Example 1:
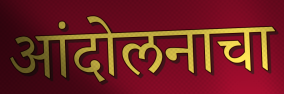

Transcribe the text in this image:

आंदोलनाचा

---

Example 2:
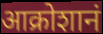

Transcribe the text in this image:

आक्रोशानं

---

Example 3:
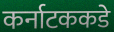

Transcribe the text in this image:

कर्नाटककडे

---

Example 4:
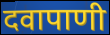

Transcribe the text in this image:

दवापाणी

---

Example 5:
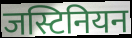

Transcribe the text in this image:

जस्टिनियन